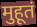
मुहूतं